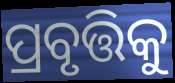
ପ୍ରବୃତ୍ତିକୁ